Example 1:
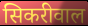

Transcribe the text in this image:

सिकरीवाल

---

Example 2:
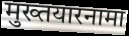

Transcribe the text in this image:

मुख्तयारनामा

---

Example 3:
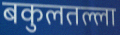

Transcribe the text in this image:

बकुलतल्ला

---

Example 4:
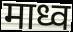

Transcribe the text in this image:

माध्व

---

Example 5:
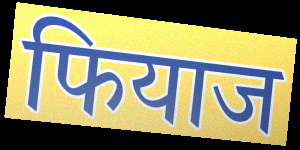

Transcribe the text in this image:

फियाज